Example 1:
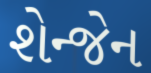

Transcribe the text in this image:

શેન્જેન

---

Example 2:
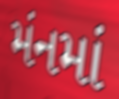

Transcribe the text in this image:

મંનમાં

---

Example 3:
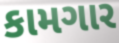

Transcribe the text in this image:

કામગાર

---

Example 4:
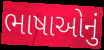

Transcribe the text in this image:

ભાષાઓનું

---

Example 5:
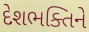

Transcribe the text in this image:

દેશભક્તિને